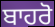
ਬਾਹਰੋ